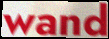
wand